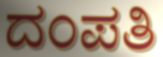
ದಂಪತಿ